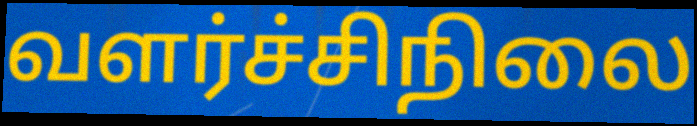
வளர்ச்சிநிலை